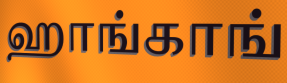
ஹாங்காங்